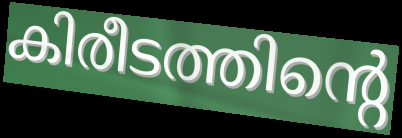
കിരീടത്തിന്റെ